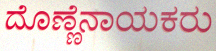
ದೊಣ್ಣೆನಾಯಕರು